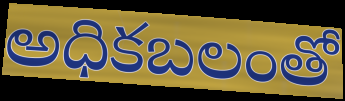
అధికబలంతో